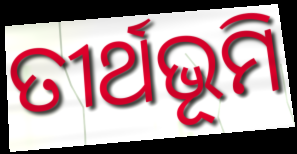
ତୀର୍ଥଭୂମି